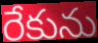
రేకును